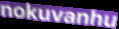
nokuvanhu